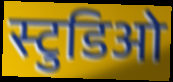
स्टुडिओ